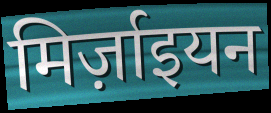
मिर्ज़ाइयन